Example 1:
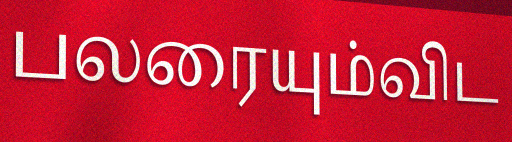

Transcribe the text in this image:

பலரையும்விட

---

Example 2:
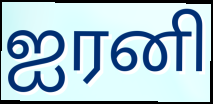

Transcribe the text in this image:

ஐரனி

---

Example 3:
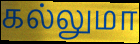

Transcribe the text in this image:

கல்லுமா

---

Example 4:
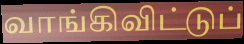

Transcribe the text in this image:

வாங்கிவிட்டுப்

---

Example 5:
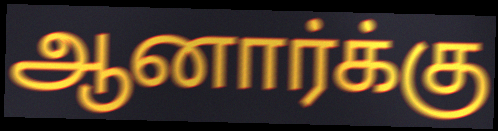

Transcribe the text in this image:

ஆனார்க்கு